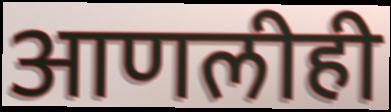
आणलीही